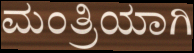
ಮಂತ್ರಿಯಾಗಿ